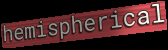
hemispherical